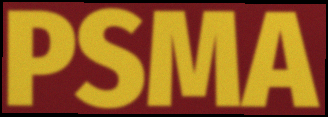
PSMA